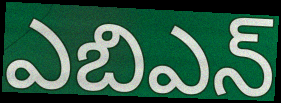
ఎబిఎన్